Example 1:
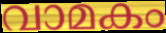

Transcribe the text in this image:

വാമകം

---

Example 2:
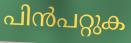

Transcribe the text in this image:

പിൻപറ്റുക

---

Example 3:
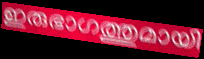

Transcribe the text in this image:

ഇരുഭാഗത്തുമായി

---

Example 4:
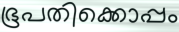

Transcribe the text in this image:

ഭൂപതിക്കൊപ്പം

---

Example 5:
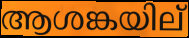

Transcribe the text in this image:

ആശങ്കയില്